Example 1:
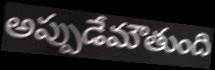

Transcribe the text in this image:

అప్పుడేమౌతుంది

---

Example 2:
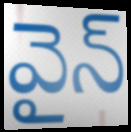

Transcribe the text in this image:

వైన్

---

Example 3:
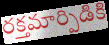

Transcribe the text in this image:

రక్తమార్పిడికి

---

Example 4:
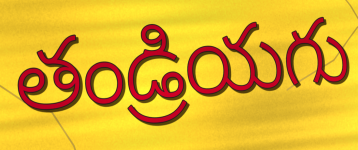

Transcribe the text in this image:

తండ్రియగు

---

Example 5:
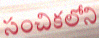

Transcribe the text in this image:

సంచికలోని